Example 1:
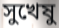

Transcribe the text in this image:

সুখেষু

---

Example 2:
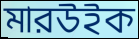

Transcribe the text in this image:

মারউইক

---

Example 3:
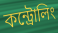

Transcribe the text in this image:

কন্ট্রোলিং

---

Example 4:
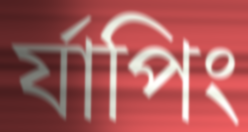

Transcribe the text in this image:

র্যাপিং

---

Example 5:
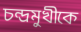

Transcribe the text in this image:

চন্দ্রমুখীকে